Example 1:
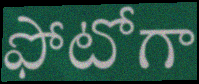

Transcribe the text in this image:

ఫోటోగా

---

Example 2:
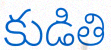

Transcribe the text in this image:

కుడితి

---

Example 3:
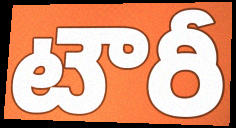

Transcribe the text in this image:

టౌరీ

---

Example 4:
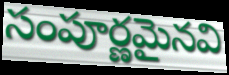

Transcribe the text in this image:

సంపూర్ణమైనవి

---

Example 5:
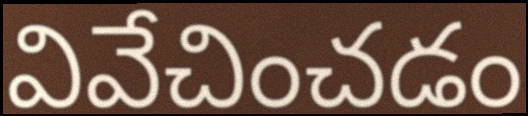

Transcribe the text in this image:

వివేచించడం